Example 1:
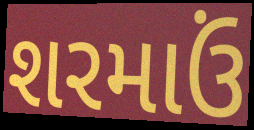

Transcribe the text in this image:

શરમાઉં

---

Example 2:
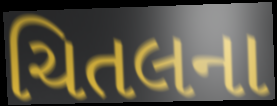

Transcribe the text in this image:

ચિતલના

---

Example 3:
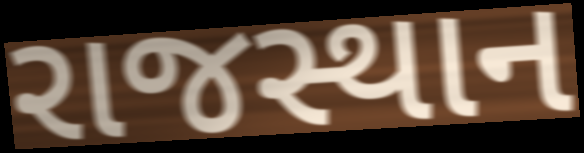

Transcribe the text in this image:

રાજસ્થાન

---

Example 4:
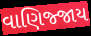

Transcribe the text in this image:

વાણિજ્જાય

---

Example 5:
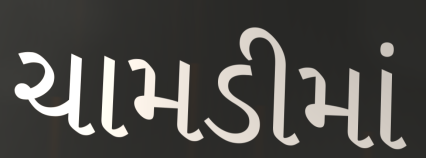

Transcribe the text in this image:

ચામડીમાં